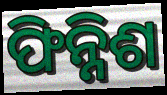
ଫିନ୍ନିଶ